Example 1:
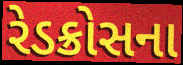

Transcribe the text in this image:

રેડક્રોસના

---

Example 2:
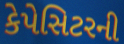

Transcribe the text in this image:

કેપેસિટરની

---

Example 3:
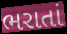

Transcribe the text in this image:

ભરાતાં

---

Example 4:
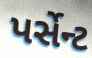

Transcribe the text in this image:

પર્સેન્ટ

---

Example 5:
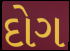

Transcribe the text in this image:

દોગ